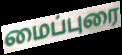
மைப்புரை